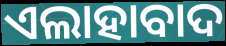
ଏଲାହାବାଦ